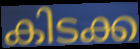
കിടക്ക